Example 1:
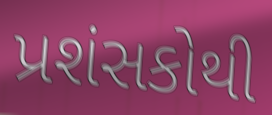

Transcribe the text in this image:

પ્રશંસકોથી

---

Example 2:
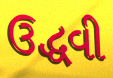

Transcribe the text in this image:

ઉદ્ધવી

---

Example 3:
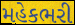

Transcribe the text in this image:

મહેકભરી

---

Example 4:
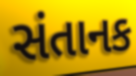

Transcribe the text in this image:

સંતાનક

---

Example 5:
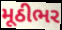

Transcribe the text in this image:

મૂઠીભર